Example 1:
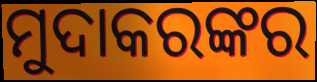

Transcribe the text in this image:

ମୁଦାକରଙ୍କର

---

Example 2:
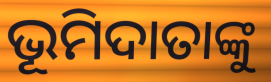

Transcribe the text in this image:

ଭୂମିଦାତାଙ୍କୁ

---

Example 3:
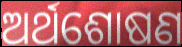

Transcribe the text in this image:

ଅର୍ଥଶୋଷଣ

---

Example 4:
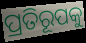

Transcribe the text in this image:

ପ୍ରତିରୂପକୁ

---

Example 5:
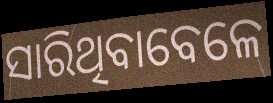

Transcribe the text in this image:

ସାରିଥିବାବେଳେ